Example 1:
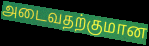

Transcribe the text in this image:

அடைவதற்குமான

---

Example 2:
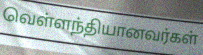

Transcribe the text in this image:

வெள்ளந்தியானவர்கள்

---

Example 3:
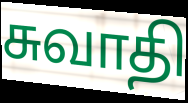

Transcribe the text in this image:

சுவாதி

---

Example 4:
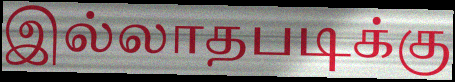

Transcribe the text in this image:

இல்லாதபடிக்கு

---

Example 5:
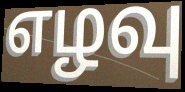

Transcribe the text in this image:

எழவு